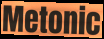
Metonic